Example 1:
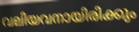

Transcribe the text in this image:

വലിയവനായിരിക്കും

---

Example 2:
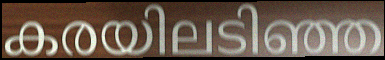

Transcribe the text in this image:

കരയിലടിഞ്ഞ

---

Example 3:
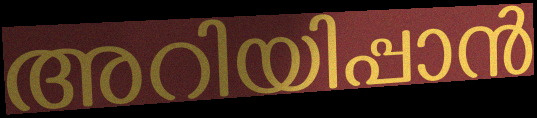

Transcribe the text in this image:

അറിയിപ്പാൻ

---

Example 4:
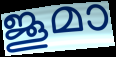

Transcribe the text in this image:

ജൂമാ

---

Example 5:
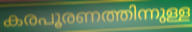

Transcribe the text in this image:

കരപൂരണത്തിന്നുള്ള